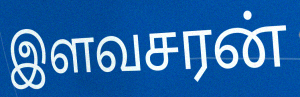
இளவசரன்